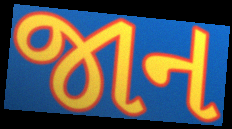
જાન